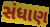
સંધાણ